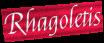
Rhagoletis